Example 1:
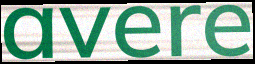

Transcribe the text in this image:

avere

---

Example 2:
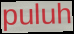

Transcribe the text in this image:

puluh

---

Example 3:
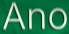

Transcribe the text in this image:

Ano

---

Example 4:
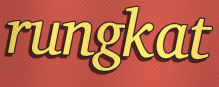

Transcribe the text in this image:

rungkat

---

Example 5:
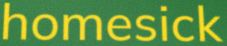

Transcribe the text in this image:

homesick